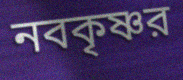
নবকৃষ্ণর